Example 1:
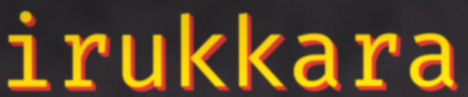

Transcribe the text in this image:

irukkara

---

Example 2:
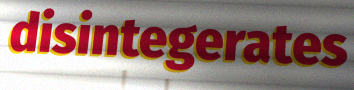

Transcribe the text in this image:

disintegerates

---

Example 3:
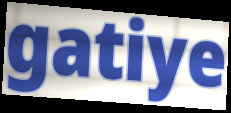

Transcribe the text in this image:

gatiye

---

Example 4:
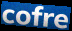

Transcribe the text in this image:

cofre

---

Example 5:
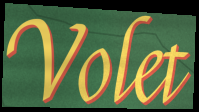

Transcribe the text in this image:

Volet